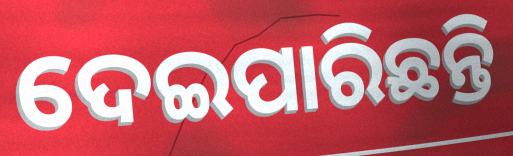
ଦେଇପାରିଛନ୍ତି